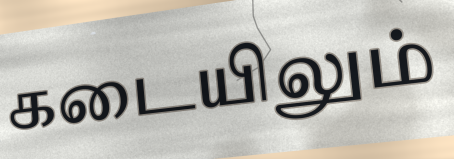
கடையிலும்